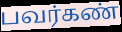
பவர்கண்